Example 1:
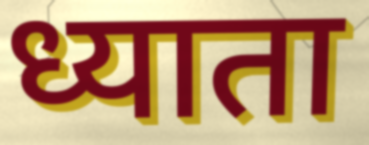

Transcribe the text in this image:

ध्याता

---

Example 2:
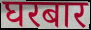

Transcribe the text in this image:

घरबार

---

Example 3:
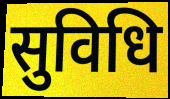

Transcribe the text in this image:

सुविधि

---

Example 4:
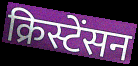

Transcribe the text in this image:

क्रिस्टेंसन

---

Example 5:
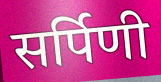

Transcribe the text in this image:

सर्पिणी